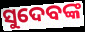
ସୁଦେବଙ୍କ